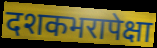
दशकभरापेक्षा